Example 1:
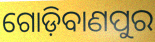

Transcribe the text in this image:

ଗୋଡ଼ିବାଣପୁର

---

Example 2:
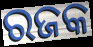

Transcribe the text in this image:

ରଜକ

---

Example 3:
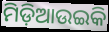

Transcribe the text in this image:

ମିଡ଼ିଆଉଇକି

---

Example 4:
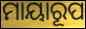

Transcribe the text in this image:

ମାୟାରୂପ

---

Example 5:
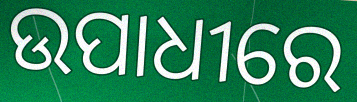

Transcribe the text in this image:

ଉପାଧୀରେ